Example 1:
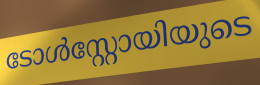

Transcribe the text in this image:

ടോൾസ്റ്റോയിയുടെ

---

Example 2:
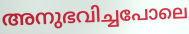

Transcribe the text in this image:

അനുഭവിച്ചപോലെ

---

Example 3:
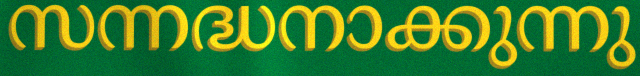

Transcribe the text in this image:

സന്നദ്ധനാക്കുന്നു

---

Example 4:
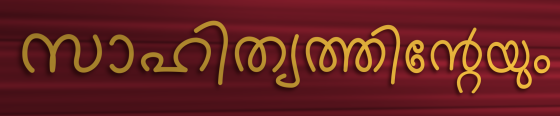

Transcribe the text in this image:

സാഹിത്യത്തിന്റേയും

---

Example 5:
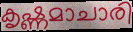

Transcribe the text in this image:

കൃഷ്ണമാചാരി